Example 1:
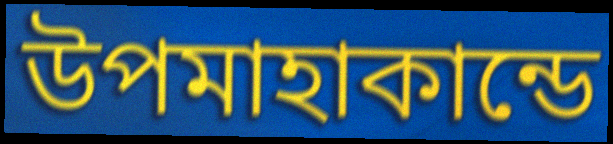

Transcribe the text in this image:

উপমাহাকান্ডে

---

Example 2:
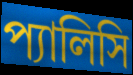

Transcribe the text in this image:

প্যালিসি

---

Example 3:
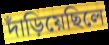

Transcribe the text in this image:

দাঁড়িয়েছিলে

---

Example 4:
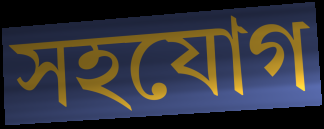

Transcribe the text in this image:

সহযোগ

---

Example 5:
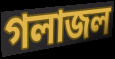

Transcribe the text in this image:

গলাজল